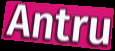
Antru